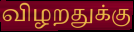
விழறதுக்கு